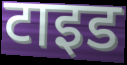
टाइड